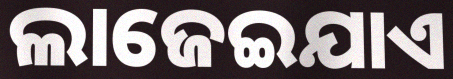
ଲାଜେଇଯାଏ